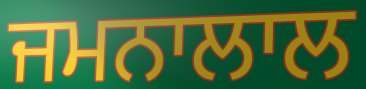
ਜਮਨਾਲਾਲ